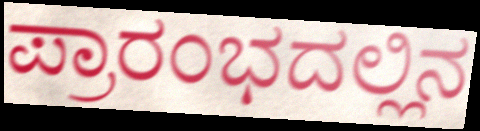
ಪ್ರಾರಂಭದಲ್ಲಿನ